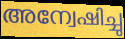
അന്വേഷിച്ചു